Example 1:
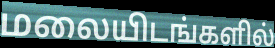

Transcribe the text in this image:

மலையிடங்களில்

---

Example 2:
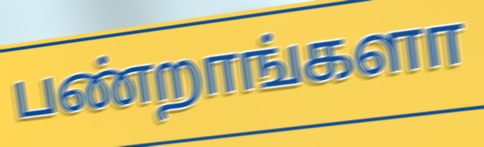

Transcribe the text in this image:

பண்றாங்களா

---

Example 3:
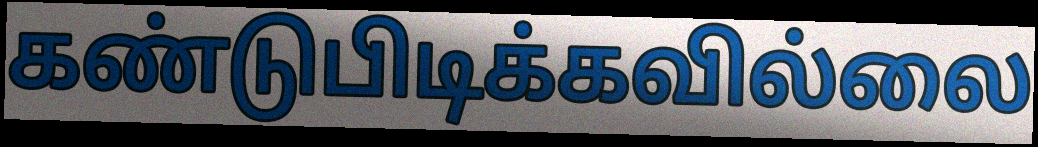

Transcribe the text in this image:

கண்டுபிடிக்கவில்லை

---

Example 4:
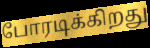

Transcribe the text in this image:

போரடிக்கிறது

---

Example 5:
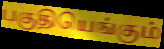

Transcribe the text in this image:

பகுதியெங்கும்